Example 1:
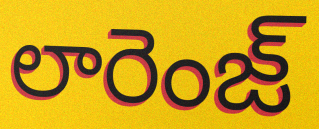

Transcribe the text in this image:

లారెంజ్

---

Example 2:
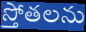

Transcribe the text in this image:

స్తోతలను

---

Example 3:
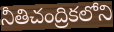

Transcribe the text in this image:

నీతిచంద్రికలోని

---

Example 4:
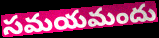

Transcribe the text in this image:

సమయమందు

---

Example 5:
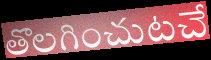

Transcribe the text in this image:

తొలగించుటచే